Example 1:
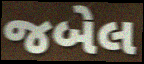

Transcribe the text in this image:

જબેલ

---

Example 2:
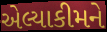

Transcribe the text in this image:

એલ્યાકીમને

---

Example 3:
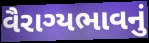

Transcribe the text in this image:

વૈરાગ્યભાવનું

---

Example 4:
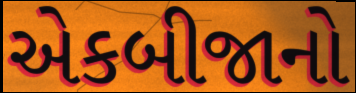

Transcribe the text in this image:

એકબીજાનો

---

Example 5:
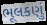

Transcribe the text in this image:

ભૂલકણું